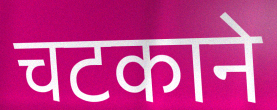
चटकाने